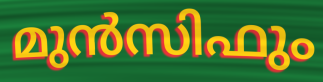
മുൻസിഫും